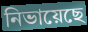
নিভায়েছে